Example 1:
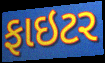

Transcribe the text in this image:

ફાઇટર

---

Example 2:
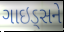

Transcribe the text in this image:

ગાઇડ્સને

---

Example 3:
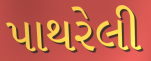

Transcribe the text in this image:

પાથરેલી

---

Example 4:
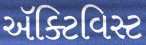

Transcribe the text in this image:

ઍક્ટિવિસ્ટ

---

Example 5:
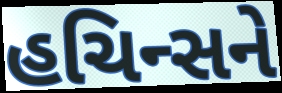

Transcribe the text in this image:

હચિન્સને